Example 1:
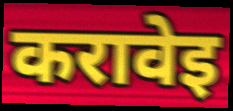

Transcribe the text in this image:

करावेइ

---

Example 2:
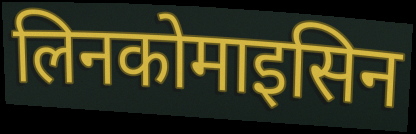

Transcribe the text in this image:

लिनकोमाइसिन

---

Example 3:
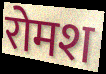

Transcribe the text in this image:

रोमश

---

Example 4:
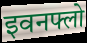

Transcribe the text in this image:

इवनफ्लो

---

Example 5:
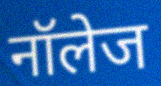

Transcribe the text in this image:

नॉलेज